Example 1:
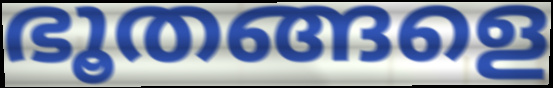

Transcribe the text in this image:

ഭൂതങ്ങളെ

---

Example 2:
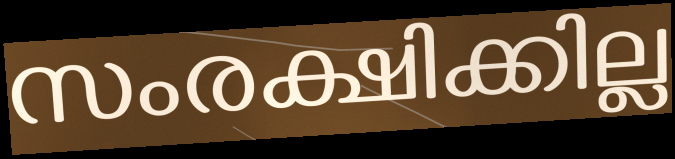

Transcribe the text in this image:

സംരക്ഷിക്കില്ല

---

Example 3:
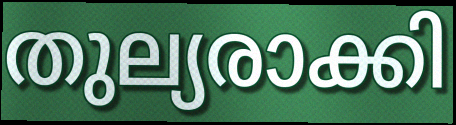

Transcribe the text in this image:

തുല്യരാക്കി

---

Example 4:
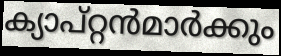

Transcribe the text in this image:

ക്യാപ്റ്റൻമാർക്കും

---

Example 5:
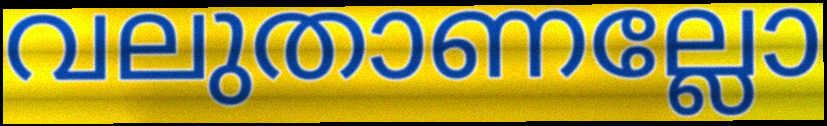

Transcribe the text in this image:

വലുതാണല്ലോ